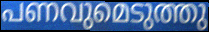
പണവുമെടുത്തു